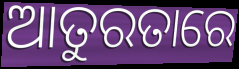
ଆତୁରତାରେ